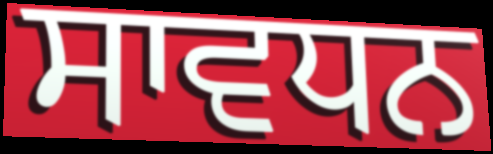
ਸਾਵਧਨ